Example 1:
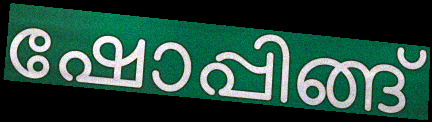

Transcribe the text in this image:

ഷോപ്പിങ്ങ്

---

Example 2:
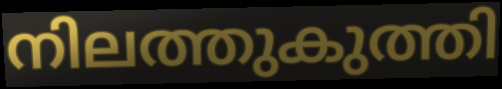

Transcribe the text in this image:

നിലത്തുകുത്തി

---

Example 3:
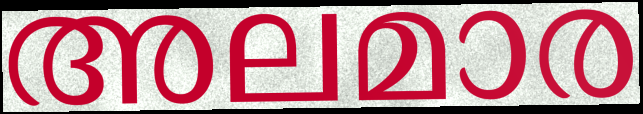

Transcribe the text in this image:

അലമാര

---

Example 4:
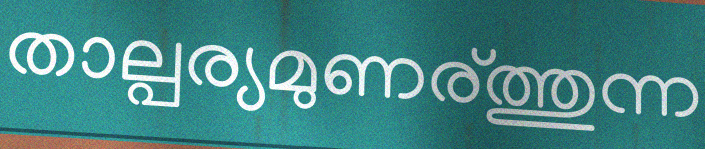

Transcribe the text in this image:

താല്പര്യമുണര്ത്തുന്ന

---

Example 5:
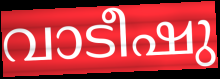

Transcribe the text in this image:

വാടീഷു